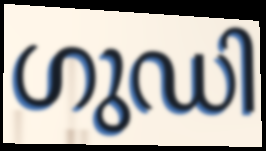
ഗുഡി